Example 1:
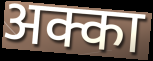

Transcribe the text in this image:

अक्का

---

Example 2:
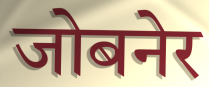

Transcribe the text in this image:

जोबनेर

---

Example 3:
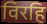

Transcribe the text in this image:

विरहि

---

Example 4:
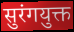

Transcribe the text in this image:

सुरंगयुक्त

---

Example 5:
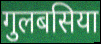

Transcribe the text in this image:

गुलबसिया